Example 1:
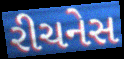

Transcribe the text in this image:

રીચનેસ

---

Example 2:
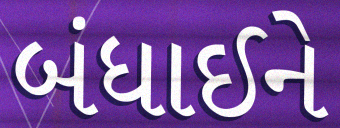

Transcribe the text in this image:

બંધાઈને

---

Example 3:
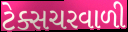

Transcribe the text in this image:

ટેક્સચરવાળી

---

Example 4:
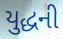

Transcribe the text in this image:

યુદ્ધની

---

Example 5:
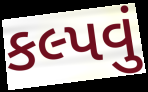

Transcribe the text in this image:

કલ્પવું